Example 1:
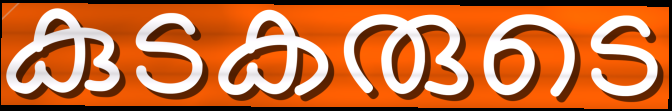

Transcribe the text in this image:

കുടകരുടെ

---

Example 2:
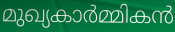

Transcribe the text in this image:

മുഖ്യകാർമ്മികൻ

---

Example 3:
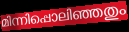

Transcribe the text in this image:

മിന്നിപ്പൊലിഞ്ഞതും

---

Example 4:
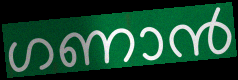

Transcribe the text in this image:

ഗണാൻ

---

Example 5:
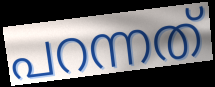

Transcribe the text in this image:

പറന്നത്